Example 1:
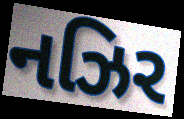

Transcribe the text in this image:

નઝિર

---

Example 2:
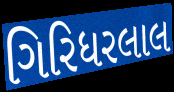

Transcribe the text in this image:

ગિરિધરલાલ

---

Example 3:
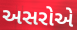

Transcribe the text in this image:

અસરોએ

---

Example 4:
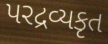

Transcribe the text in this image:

પરદ્રવ્યકૃત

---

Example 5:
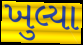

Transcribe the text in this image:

ખુલ્યા